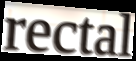
rectal